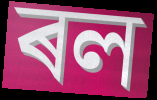
ৰল